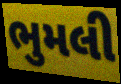
ભુમલી